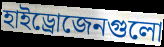
হাইড্রোজেনগুলো